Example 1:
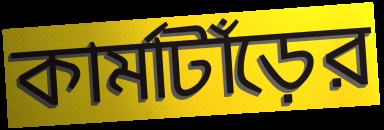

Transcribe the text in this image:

কার্মাটাঁড়ের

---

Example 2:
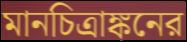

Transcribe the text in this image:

মানচিত্রাঙ্কনের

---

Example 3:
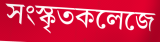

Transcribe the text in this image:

সংস্কৃতকলেজে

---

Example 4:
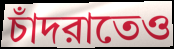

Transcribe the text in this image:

চাঁদরাতেও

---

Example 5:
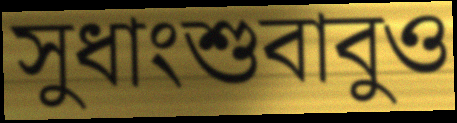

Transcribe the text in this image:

সুধাংশুবাবুও